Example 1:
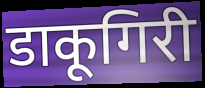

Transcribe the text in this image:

डाकूगिरी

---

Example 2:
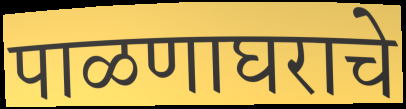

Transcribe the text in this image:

पाळणाघराचे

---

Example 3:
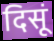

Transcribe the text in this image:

दिसूं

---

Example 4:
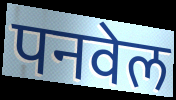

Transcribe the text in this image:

पनवेल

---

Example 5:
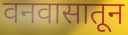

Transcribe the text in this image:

वनवासातून